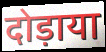
दोड़ाया